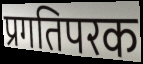
प्रगतिपरक